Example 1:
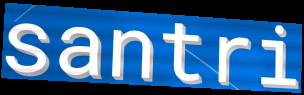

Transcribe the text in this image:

santri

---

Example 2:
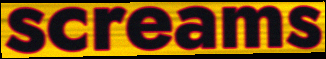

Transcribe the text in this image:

screams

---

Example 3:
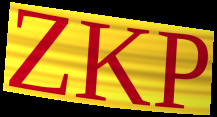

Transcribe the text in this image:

ZKP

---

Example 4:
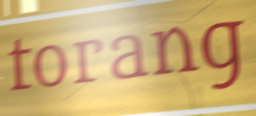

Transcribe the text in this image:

torang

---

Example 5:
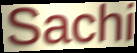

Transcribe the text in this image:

Sachi